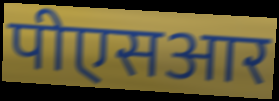
पीएसआर